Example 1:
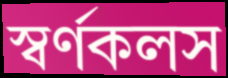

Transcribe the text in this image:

স্বর্ণকলস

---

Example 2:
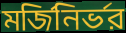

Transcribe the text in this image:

মর্জিনির্ভর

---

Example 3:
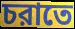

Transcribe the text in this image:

চরাতে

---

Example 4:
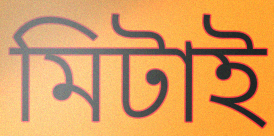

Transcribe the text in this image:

মিটাই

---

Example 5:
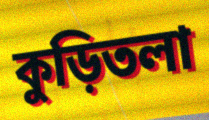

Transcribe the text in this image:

কুড়িতলা